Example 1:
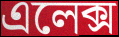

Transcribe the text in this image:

এলেক্স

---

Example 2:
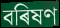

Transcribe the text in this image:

বৰিষণ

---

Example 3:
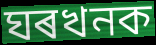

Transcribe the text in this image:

ঘৰখনক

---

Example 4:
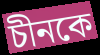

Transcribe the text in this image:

চীনকে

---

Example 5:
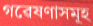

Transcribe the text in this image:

গৱেষণাসমূহ